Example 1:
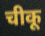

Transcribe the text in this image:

चीकू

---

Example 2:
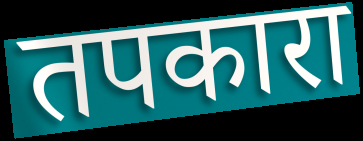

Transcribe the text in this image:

तपकारा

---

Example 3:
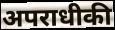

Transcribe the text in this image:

अपराधीकी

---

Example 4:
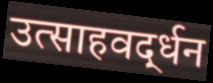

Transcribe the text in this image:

उत्साहवर्द्धन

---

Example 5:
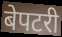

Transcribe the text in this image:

बेपटरी